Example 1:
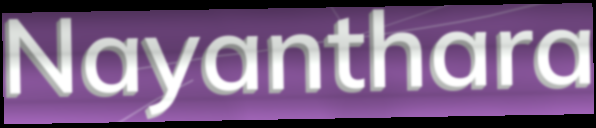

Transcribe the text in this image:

Nayanthara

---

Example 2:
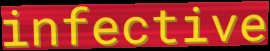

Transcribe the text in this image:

infective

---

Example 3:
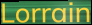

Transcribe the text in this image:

Lorrain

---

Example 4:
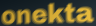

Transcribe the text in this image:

onekta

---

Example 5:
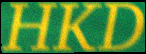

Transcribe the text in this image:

HKD